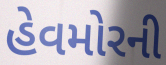
હેવમોરની